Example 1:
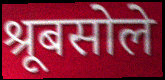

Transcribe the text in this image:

श्रूबसोले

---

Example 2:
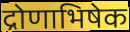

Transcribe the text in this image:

द्रोणाभिषेक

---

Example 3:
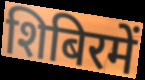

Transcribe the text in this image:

शिबिरमें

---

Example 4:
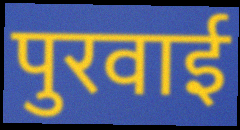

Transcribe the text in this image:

पुरवाई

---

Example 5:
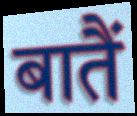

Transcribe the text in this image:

बातैं